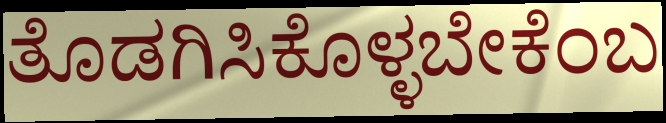
ತೊಡಗಿಸಿಕೊಳ್ಳಬೇಕೆಂಬ